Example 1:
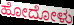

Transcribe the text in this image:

ಹೋದೋಳು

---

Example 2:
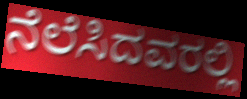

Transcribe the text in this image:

ನೆಲೆಸಿದವರಲ್ಲಿ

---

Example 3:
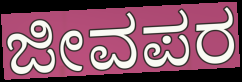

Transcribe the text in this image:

ಜೀವಪರ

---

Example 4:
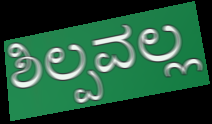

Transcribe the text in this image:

ಶಿಲ್ಪವಲ್ಲ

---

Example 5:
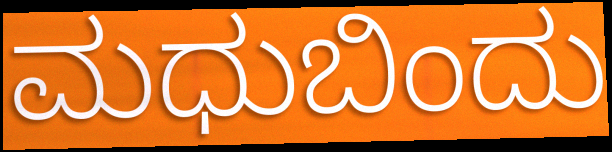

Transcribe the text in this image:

ಮಧುಬಿಂದು